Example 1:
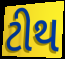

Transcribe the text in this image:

ટીથ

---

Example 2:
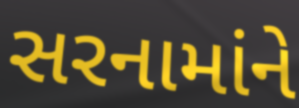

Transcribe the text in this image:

સરનામાંને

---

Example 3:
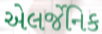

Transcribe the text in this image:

એલર્જેનિક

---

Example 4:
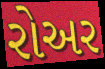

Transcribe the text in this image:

રોઅર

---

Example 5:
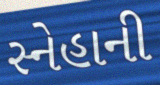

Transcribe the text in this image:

સ્નેહાની